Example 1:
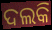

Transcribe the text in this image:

ଦଲକି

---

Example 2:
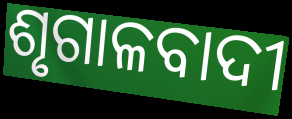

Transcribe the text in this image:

ଶୃଗାଳବାଦୀ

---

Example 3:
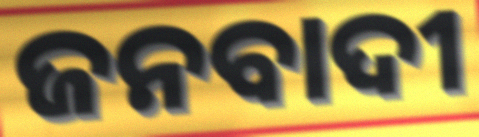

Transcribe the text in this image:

ଜନବାଦୀ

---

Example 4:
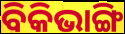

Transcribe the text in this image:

ବିକିଭାଙ୍ଗି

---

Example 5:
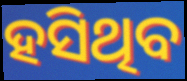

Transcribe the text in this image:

ହସିଥିବ